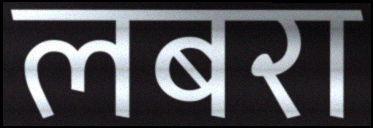
लबरा